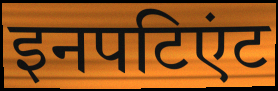
इनपटिएंट